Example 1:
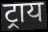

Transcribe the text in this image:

ट्राय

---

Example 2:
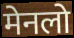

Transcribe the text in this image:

मेनलो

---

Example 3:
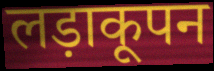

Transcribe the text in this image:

लड़ाकूपन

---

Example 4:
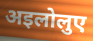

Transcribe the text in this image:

अइलोलुए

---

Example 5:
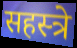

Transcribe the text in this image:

सहस्त्रे